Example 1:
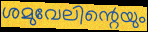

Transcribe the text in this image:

ശമുവേലിന്റെയും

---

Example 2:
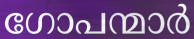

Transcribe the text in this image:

ഗോപന്മാർ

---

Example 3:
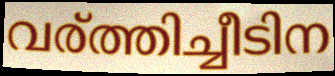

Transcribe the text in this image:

വര്ത്തിച്ചീടിന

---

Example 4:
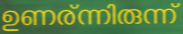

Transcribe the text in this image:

ഉണര്ന്നിരുന്ന്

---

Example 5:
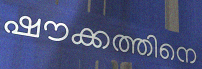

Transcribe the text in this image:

ഷൗക്കത്തിനെ